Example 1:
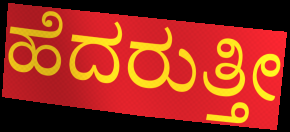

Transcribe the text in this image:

ಹೆದರುತ್ತೀ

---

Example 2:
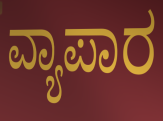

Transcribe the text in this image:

ವ್ಯಾಪಾರ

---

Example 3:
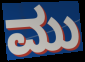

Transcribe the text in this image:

ಮು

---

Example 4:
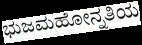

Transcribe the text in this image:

ಭುಜಮಹೋನ್ನತಿಯ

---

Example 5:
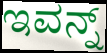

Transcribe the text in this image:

ಇವನ್ನ್